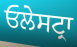
ਓਲੇਸਟ੍ਰਾ